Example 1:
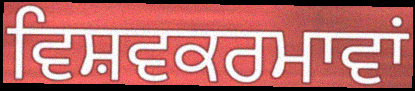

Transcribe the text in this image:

ਵਿਸ਼ਵਕਰਮਾਵਾਂ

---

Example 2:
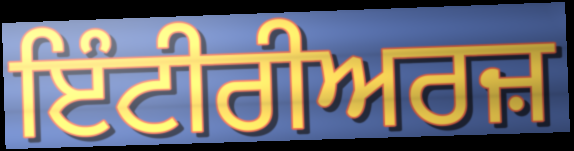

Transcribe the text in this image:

ਇੰਟੀਰੀਅਰਜ਼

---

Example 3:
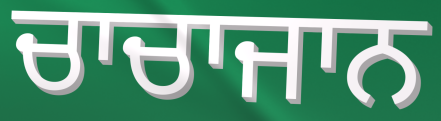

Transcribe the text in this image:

ਚਾਚਾਜਾਨ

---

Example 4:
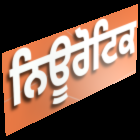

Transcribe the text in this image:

ਨਿਊਰੋਟਿਕ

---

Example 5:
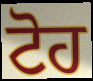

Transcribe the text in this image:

ਟੋਹ